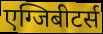
एग्जिबीटर्स